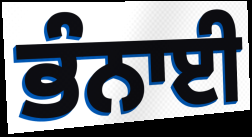
ਭੰਨਾਈ